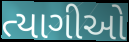
ત્યાગીઓ